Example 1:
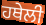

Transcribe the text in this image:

ਹਥੇਲੀ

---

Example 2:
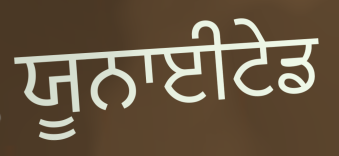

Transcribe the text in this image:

ਯੂਨਾਈਟੇਡ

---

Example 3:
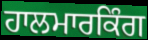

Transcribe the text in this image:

ਹਾਲਮਾਰਕਿੰਗ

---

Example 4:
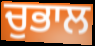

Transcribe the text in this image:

ਚੁਭਾਲ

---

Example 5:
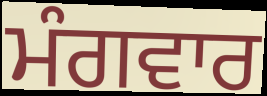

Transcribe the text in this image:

ਮੰਗਵਾਰ